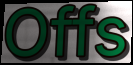
Offs